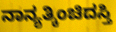
ನಾನ್ಯತ್ಕಿಂಚಿದಸ್ತಿ